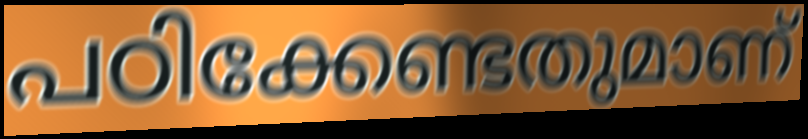
പഠിക്കേണ്ടതുമാണ്